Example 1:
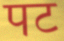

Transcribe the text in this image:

पट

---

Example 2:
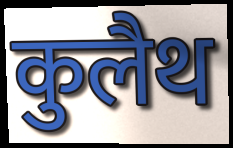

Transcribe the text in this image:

कुलैथ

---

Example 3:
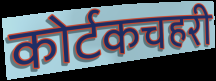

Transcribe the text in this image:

कोर्टकचहरी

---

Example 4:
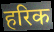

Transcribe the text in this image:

हरिक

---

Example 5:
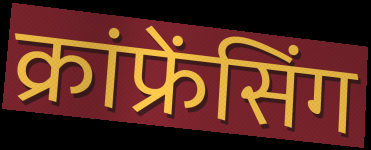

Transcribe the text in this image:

क्रांफ्रेंसिंग